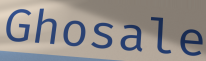
Ghosale